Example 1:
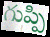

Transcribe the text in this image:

గుప్పి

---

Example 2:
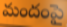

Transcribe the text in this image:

మందంపై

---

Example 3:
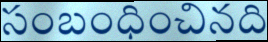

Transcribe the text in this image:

సంబంధించినది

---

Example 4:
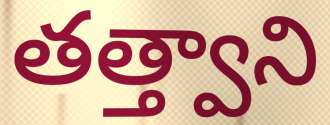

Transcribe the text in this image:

తత్త్వాని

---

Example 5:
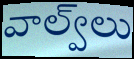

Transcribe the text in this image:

వాల్వ్‌లు